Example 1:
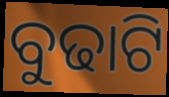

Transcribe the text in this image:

ବୁଢାଟି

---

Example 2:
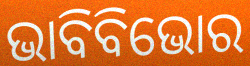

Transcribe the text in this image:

ଭାବିବିଭୋର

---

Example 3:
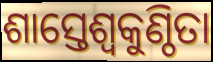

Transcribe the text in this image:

ଶାସ୍ତେଶ୍ବକୁଣ୍ଠିତା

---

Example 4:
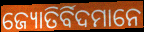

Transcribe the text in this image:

ଜ୍ୟୋତିର୍ବିଦମାନେ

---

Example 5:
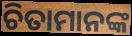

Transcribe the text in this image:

ଚିତାମାନଙ୍କ